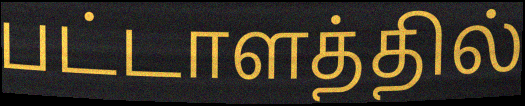
பட்டாளத்தில்